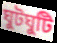
ঘুটঘুটি